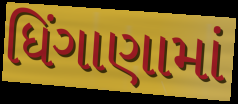
ધિંગાણામાં